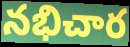
నభిచార